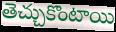
తెచ్చుకొంటాయి